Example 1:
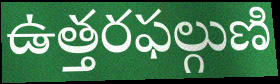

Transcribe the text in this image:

ఉత్తరఫల్గుణి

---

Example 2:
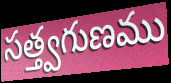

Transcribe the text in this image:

సత్త్వగుణము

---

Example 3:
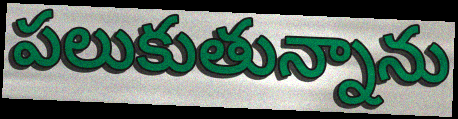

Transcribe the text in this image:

పలుకుతున్నాను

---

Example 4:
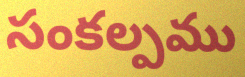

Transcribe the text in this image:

సంకల్పము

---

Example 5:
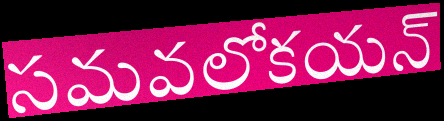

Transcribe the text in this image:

సమవలోకయన్